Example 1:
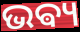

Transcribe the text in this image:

ଭଵ୍ୟ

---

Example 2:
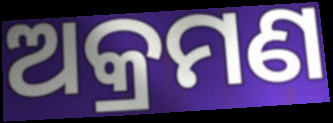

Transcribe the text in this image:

ଅକ୍ରମଣ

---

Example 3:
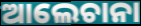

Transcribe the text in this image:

ଆଲେଚାନା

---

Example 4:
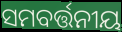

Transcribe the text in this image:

ସମବର୍ତ୍ତନୀୟ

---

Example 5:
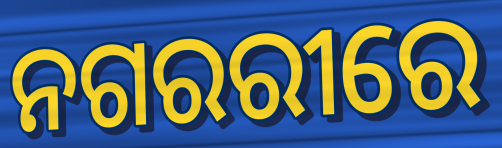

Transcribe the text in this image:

ନଗରରୀରେ